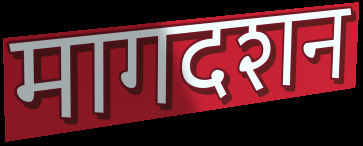
मागदशन